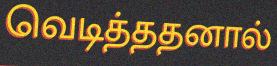
வெடித்ததனால்